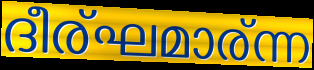
ദീര്ഘമാര്ന്ന